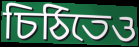
চিঠিতেও